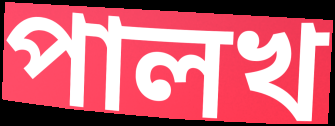
পালখ